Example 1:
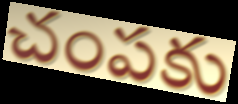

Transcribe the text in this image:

చంపకు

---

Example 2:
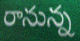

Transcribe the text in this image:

రానున్న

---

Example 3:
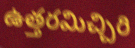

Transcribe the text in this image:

ఉత్తరమిచ్చిరి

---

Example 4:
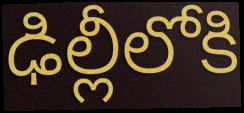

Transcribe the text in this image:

ఢిల్లీలోకి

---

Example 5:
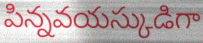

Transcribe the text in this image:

పిన్నవయస్కుడిగా